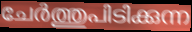
ചേർത്തുപിടിക്കുന്ന